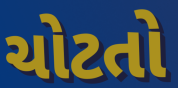
ચોટતો